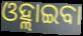
ଓହ୍ଲାଇବା